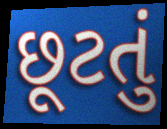
છૂટતું